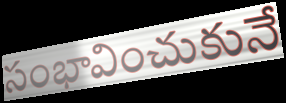
సంభావించుకునే